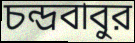
চন্দ্রবাবুর